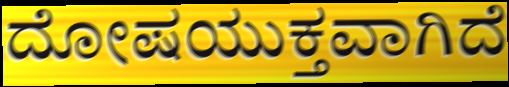
ದೋಷಯುಕ್ತವಾಗಿದೆ